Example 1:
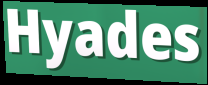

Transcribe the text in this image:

Hyades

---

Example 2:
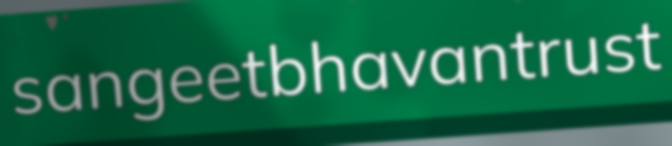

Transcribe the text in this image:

sangeetbhavantrust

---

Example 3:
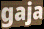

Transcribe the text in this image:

gaja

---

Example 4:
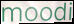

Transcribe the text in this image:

moodi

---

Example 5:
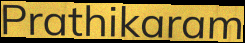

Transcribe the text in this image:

Prathikaram